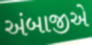
અંબાજીએ